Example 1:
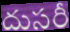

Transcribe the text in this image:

దుసరీ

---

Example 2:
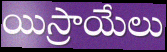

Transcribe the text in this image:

యిస్రాయేలు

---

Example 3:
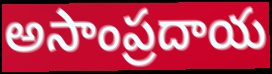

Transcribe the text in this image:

అసాంప్రదాయ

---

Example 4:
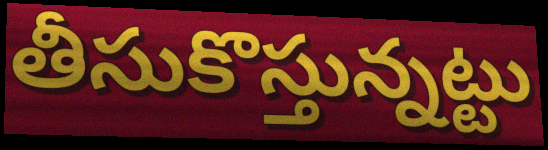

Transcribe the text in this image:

తీసుకొస్తున్నట్టు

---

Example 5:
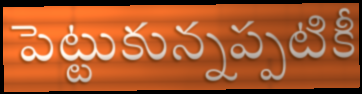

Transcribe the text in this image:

పెట్టుకున్నప్పటికీ